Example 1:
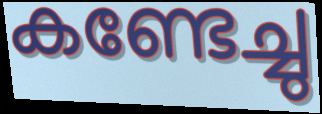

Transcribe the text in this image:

കണ്ടേച്ചു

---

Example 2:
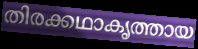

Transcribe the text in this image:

തിരക്കഥാകൃത്തായ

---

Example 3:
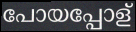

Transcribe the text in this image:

പോയപ്പോള്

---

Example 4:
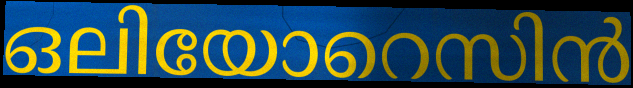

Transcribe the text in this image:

ഒലിയോറെസിൻ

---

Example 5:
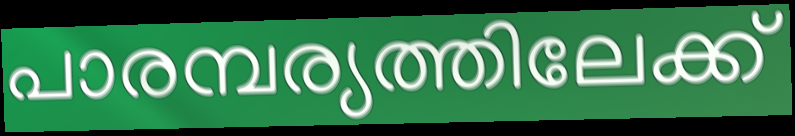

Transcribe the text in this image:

പാരമ്പര്യത്തിലേക്ക്